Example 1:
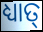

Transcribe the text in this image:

ଧ୍ୟାତ୍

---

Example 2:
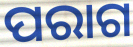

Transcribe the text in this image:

ପରାଗ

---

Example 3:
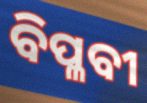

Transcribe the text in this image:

ବିପ୍ଳବୀ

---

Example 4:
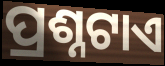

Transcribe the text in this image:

ପ୍ରଶ୍ନଟାଏ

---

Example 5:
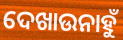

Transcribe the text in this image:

ଦେଖାଉନାହୁଁ